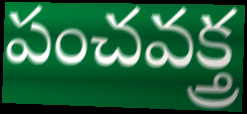
పంచవక్త్ర